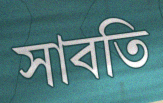
সাবতি